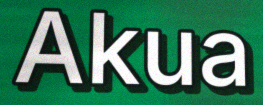
Akua